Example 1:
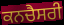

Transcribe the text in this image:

ਕਨਚੈਸਰੀ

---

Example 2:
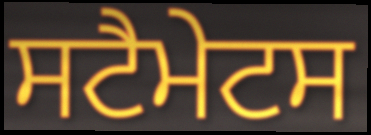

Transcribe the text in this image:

ਸਟੈਮੇਟਸ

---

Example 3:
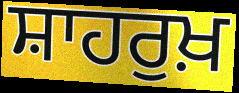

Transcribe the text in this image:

ਸ਼ਾਹਰੁਖ਼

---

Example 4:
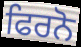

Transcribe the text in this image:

ਫਿਰਨੋ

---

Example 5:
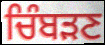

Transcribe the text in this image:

ਚਿੰਬੜਣ